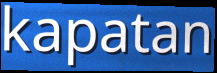
kapatan